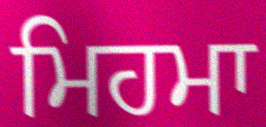
ਮਿਹਮਾ